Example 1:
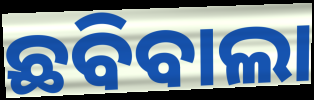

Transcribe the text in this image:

ଛବିବାଲା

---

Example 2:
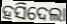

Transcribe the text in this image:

ହସିଦେଲା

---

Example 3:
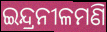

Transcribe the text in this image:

ଇନ୍ଦ୍ରନୀଳମଣି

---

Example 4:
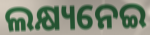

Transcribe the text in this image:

ଲକ୍ଷ୍ୟନେଇ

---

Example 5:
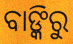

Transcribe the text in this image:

ବାଙ୍କିରୁ